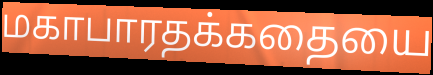
மகாபாரதக்கதையை